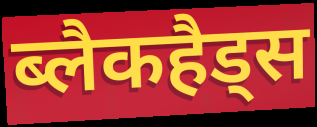
ब्लैकहैड्स